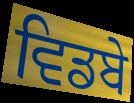
ਵਿਡਬੇ